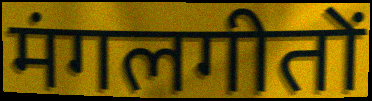
मंगलगीतों